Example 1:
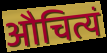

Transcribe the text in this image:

औचित्यं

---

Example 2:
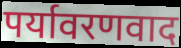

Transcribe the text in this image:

पर्यावरणवाद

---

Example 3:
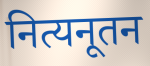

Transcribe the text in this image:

नित्यनूतन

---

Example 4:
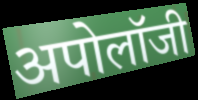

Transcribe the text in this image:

अपोलॉजी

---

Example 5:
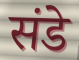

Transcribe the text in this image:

संडे